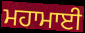
ਮਹਾਮਾਈ